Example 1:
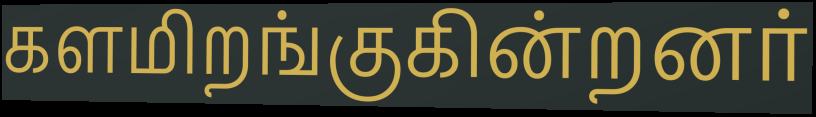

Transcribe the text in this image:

களமிறங்குகின்றனர்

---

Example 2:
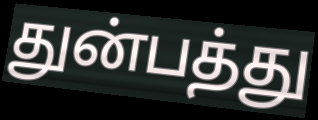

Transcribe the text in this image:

துன்பத்து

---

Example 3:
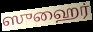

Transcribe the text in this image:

ஸுஹைர்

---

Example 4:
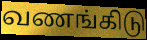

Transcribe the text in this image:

வணங்கிடு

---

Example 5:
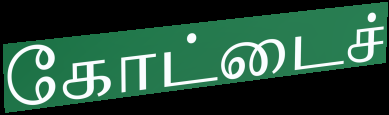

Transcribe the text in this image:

கோட்டைச்